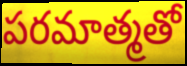
పరమాత్మతో